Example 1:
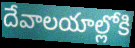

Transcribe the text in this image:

దేవాలయాల్లోకి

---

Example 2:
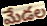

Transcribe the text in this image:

మేడల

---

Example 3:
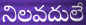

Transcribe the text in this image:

నిలవదులే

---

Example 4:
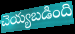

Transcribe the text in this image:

చెయ్యబడింది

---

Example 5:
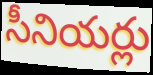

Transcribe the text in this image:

సీనియర్లు